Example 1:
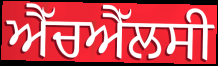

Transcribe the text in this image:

ਐੱਚਐੱਲਸੀ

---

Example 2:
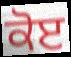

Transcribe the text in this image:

ਕੋੲ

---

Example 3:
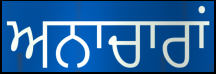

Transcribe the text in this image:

ਅਨਾਚਾਰਾਂ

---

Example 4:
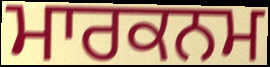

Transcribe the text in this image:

ਮਾਰਕਨਮ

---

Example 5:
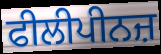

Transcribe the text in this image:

ਫੀਲੀਪੀਨਜ਼